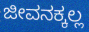
ಜೀವನಕ್ಕಲ್ಲ